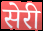
सेरी